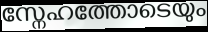
സ്നേഹത്തോടെയും